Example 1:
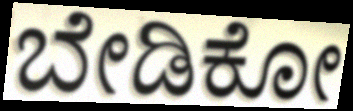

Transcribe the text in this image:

ಬೇಡಿಕೋ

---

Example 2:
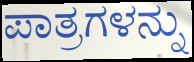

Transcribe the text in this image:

ಪಾತ್ರಗಳನ್ನು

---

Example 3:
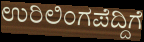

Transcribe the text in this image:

ಉರಿಲಿಂಗಪೆದ್ದಿಗೆ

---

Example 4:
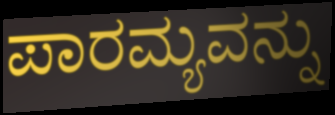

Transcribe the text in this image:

ಪಾರಮ್ಯವನ್ನು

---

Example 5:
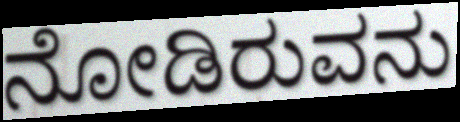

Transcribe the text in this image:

ನೋಡಿರುವನು